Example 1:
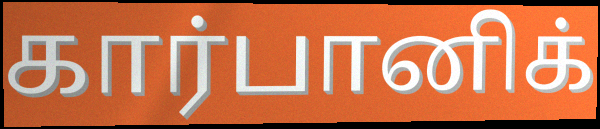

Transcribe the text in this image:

கார்பானிக்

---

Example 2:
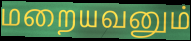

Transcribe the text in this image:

மறையவனும்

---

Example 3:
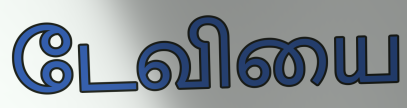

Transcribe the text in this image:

டேவியை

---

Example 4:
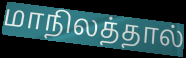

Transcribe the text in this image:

மாநிலத்தால்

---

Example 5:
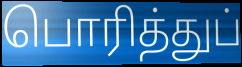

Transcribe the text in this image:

பொரித்துப்